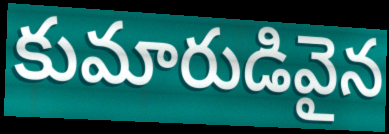
కుమారుడివైన